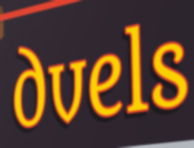
duels